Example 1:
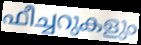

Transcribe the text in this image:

ഫീച്ചറുകളും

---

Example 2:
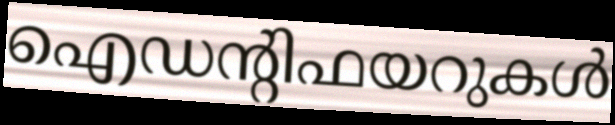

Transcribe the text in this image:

ഐഡന്റിഫയറുകൾ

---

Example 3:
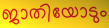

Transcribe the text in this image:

ജാതിയോടും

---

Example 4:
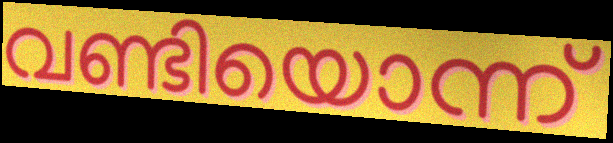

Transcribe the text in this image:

വണ്ടിയൊന്ന്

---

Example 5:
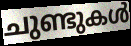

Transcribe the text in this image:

ചുണ്ടുകൾ